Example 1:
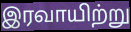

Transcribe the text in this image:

இரவாயிற்று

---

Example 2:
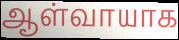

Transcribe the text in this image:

ஆள்வாயாக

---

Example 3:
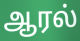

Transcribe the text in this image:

ஆரல்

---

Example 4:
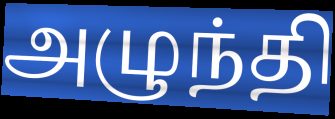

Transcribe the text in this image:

அழுந்தி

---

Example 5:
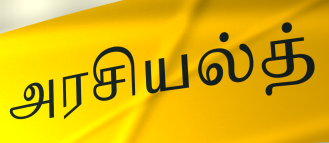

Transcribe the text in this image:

அரசியல்த்